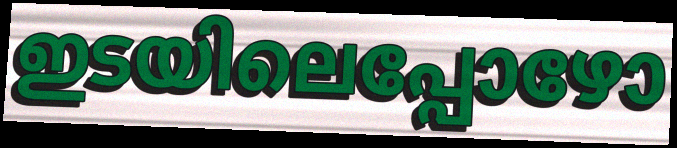
ഇടയിലെപ്പോഴോ